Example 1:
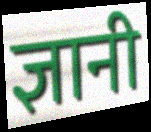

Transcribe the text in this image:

ज्ञानी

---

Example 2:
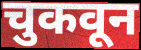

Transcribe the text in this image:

चुकवून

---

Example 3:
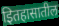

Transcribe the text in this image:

इितहासातील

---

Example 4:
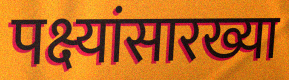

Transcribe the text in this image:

पक्ष्यांसारख्या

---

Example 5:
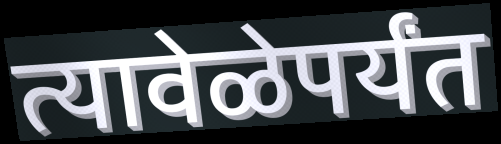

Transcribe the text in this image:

त्यावेळेपर्यंत